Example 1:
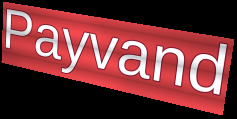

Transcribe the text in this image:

Payvand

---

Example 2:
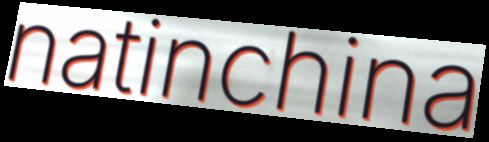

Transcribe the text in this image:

natinchina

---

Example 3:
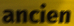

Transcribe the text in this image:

ancien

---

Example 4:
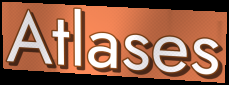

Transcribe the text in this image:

Atlases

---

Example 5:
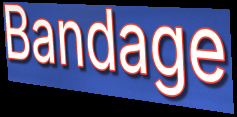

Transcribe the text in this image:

Bandage